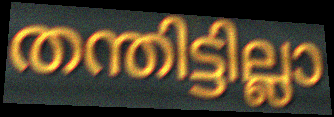
തന്തിട്ടില്ലാ